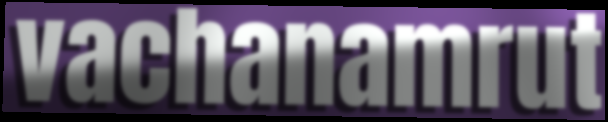
vachanamrut